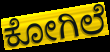
ಕೋಗಿಲೆ